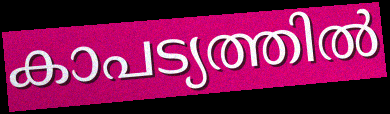
കാപട്യത്തിൽ